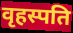
वृहस्पति